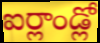
ఐర్లాండ్లో